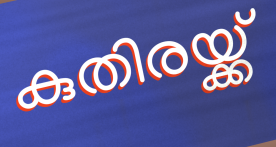
കുതിരയ്ക്ക്